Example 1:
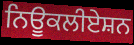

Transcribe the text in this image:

ਨਿਊਕਲੀਏਸ਼ਨ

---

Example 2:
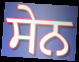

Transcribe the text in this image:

ਸੇਨ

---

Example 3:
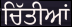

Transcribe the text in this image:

ਚਿੱਤੀਆਂ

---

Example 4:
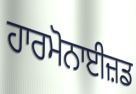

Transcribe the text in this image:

ਹਾਰਮੋਨਾਈਜ਼ਡ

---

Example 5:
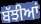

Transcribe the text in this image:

ਬੱਝੀਆਂ